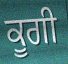
ਕੂਗੀ